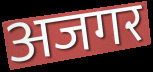
अजगर